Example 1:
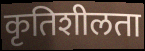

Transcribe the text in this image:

कृतिशीलता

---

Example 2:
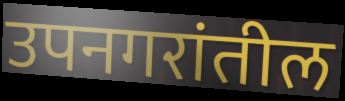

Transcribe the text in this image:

उपनगरांतील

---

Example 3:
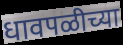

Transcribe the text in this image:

धावपळीच्या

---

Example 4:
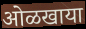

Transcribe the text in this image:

ओळखाया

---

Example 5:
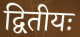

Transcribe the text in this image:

द्वितीयः